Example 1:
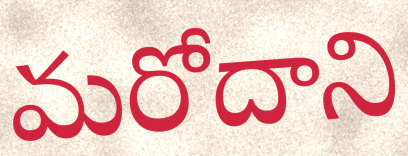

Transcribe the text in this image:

మరోదాని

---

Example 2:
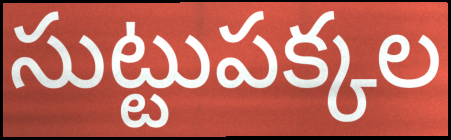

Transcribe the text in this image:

సుట్టుపక్కల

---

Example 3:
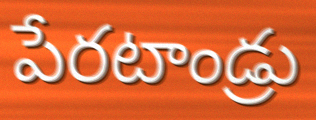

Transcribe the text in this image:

పేరటాండ్రు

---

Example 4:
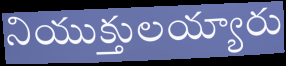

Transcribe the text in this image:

నియుక్తులయ్యారు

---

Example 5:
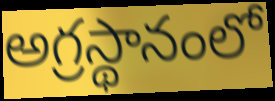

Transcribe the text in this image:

అగ్రస్థానంలో